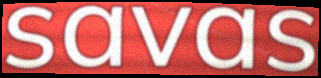
savas